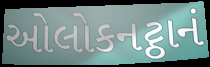
ઓલોકનટ્ઠાનં